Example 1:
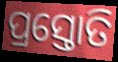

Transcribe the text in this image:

ପ୍ରସ୍ତୋତି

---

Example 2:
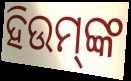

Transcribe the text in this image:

ହିଉମ୍‌ଙ୍କ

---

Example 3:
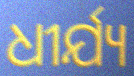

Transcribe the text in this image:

ଧୀର୍ଯ୍ୟ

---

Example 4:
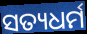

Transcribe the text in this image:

ସତ୍ୟଧର୍ମ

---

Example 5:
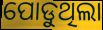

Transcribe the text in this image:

ପୋଡୁଥିଲା